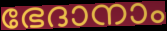
ഭേദാനാം